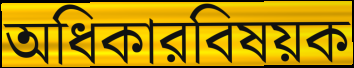
অধিকারবিষয়ক